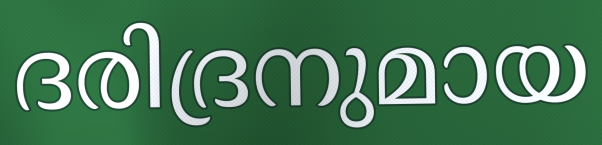
ദരിദ്രനുമായ